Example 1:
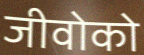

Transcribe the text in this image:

जीवोको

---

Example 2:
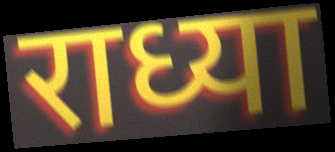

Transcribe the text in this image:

राध्या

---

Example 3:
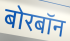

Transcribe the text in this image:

बोरबॉन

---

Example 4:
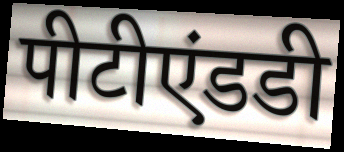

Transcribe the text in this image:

पीटीएंडडी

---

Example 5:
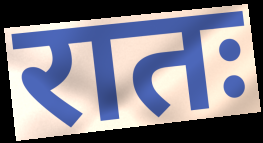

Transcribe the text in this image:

रातः